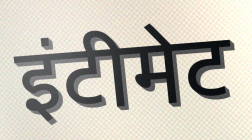
इंटीमेट